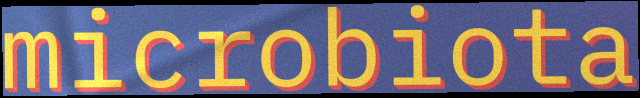
microbiota